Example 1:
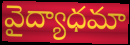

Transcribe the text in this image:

వైద్యాధమా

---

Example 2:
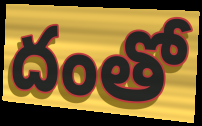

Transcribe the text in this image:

దంతో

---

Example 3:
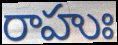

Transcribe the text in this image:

రాహుః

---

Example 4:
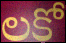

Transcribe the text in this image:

లకో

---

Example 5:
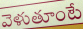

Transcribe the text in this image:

వెళుతూంటే